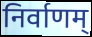
निर्वाणम्